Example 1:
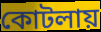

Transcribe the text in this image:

কোটলায়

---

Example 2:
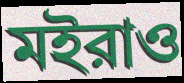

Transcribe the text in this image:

মইরাও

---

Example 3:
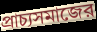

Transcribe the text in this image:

প্রাচ্যসমাজের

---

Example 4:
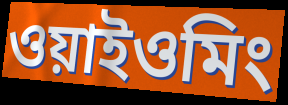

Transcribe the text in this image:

ওয়াইওমিং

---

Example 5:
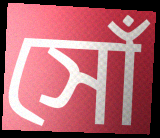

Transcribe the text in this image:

সোঁ